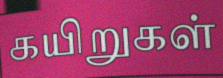
கயிறுகள்